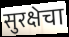
सुरक्षेचा